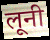
लूनी